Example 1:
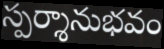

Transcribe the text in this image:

స్పర్శానుభవం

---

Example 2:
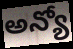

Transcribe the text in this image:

అన్యో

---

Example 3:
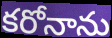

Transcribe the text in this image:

కరోనాను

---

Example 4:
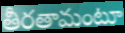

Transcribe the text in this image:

తీరతామంటూ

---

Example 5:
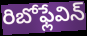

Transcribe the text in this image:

రిబోఫ్లేవిన్